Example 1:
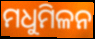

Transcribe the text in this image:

ମଧୁମିଳନ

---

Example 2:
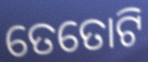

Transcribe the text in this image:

ତେତୋଟି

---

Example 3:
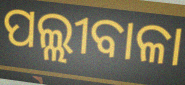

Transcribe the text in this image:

ପଲ୍ଲୀବାଳା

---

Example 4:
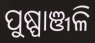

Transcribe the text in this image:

ପୁଷ୍ପାଞ୍ଜଳି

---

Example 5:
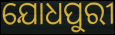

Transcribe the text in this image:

ଯୋଧପୁରୀ